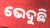
ଭେଦୁଛି